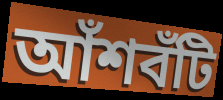
আঁশবঁটি